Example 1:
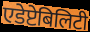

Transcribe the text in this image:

एडेप्टेबिलिटी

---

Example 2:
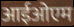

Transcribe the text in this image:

आईओएम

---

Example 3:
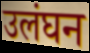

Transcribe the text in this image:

उलंघन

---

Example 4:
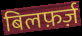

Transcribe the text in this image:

बिलफ़र्ज़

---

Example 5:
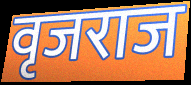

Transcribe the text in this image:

वृजराज